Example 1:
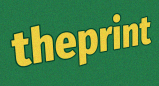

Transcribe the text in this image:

theprint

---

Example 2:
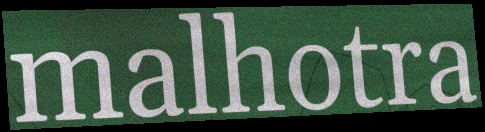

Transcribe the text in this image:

malhotra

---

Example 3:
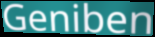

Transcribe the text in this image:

Geniben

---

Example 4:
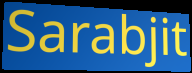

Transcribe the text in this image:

Sarabjit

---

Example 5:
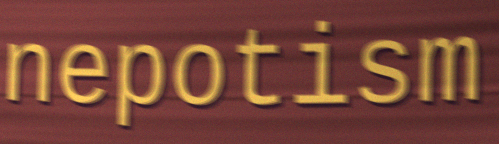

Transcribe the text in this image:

nepotism